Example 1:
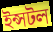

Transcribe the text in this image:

ইন্সটল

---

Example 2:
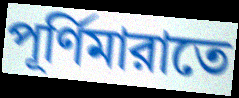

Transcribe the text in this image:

পূর্ণিমারাতে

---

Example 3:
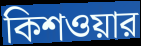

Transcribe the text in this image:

কিশওয়ার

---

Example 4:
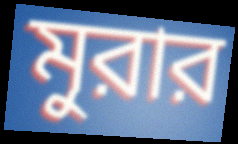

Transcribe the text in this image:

মুরার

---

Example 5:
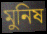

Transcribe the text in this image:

মুনিষ